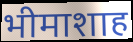
भीमाशाह